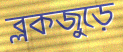
ব্লকজুড়ে